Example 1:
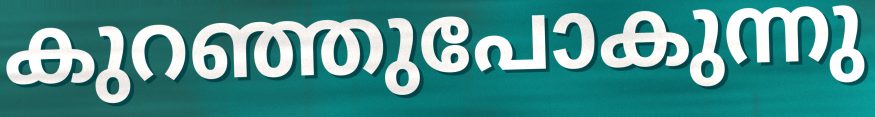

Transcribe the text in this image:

കുറഞ്ഞുപോകുന്നു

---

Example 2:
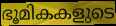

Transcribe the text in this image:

ഭൂമികകളുടെ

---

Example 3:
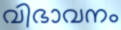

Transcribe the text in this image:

വിഭാവനം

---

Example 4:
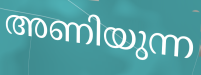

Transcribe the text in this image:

അണിയുന്ന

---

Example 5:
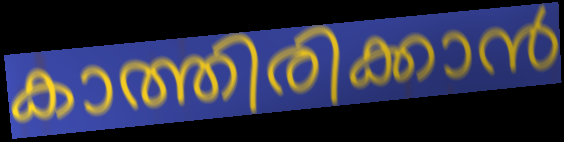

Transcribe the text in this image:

കാത്തിരിക്കാൻ